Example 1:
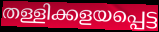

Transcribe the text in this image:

തള്ളിക്കളയപ്പെട്ട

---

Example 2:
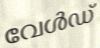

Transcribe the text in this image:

വേൾഡ്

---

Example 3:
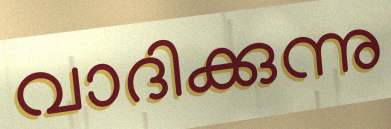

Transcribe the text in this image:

വാദിക്കുന്നു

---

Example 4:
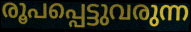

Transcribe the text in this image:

രൂപപ്പെട്ടുവരുന്ന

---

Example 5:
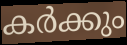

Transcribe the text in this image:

കർക്കും